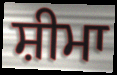
ਸ਼ੀਮਾ